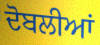
ਦੋਬਲੀਆਂ